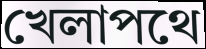
খেলাপথে